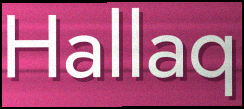
Hallaq